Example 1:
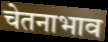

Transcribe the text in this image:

चेतनाभाव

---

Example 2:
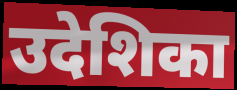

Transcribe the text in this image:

उदेशिका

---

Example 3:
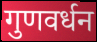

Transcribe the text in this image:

गुणवर्धन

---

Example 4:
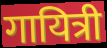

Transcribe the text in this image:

गायित्री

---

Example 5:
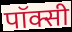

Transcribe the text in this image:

पॉक्सी